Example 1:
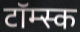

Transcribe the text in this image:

टॉम्स्क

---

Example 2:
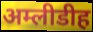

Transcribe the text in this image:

अम्लीडीह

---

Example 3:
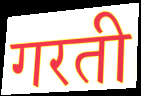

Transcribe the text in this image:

गरती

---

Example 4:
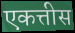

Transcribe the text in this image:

एकत्तीस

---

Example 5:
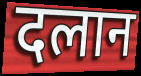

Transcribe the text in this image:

दलान